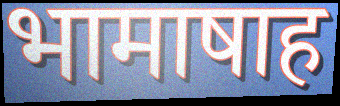
भामाषाह